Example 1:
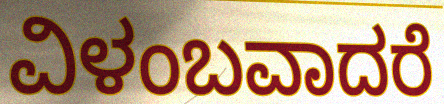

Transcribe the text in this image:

ವಿಳಂಬವಾದರೆ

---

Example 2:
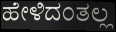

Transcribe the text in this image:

ಹೇಳಿದಂತಲ್ಲ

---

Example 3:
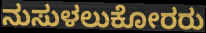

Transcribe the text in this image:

ನುಸುಳಲುಕೋರರು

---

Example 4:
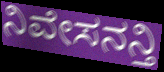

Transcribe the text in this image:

ನಿವೇಸನನ್ತಿ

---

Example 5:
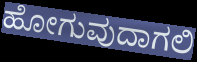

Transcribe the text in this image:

ಹೋಗುವುದಾಗಲಿ